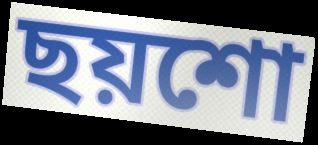
ছয়শো